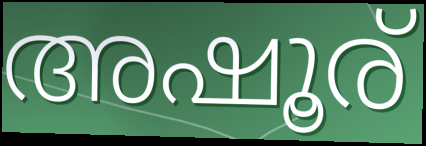
അഷൂര്